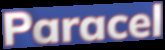
Paracel